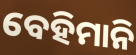
ବେହିମାନି